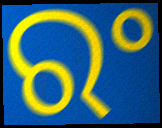
ରଂ